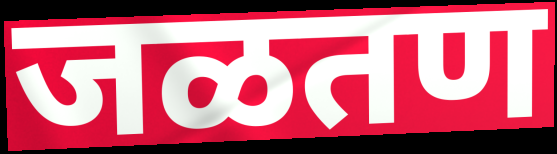
जळतण